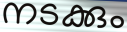
നടക്കും